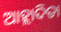
ଆହ୍ଲାଦିତା